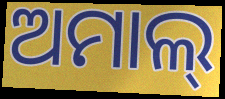
ଅମାଲ୍